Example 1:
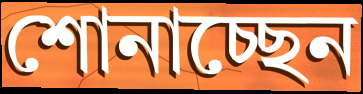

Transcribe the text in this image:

শোনাচ্ছেন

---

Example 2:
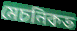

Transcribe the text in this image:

মেচনিকভ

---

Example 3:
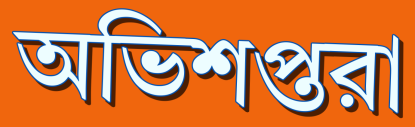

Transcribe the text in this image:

অভিশপ্তরা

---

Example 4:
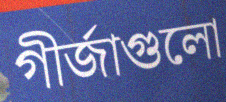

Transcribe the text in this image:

গীর্জাগুলো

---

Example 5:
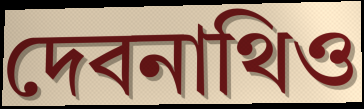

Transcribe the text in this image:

দেবনাথিও